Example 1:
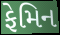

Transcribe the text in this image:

ફેમિન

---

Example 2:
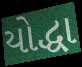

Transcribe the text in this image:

યોદ્ધા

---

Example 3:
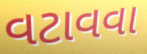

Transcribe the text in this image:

વટાવવા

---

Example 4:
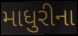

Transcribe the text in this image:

માધુરીના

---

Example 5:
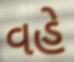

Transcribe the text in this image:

વહે